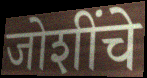
जोशींचे